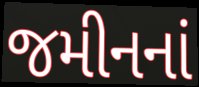
જમીનનાં